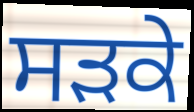
ਸਡ਼ਕੇ